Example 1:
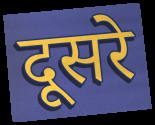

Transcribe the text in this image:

दूसरे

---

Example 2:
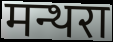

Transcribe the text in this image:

मन्थरा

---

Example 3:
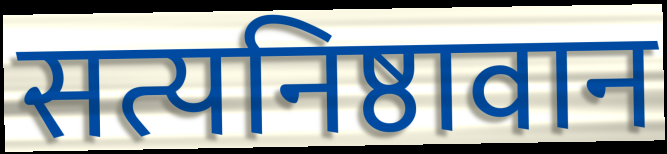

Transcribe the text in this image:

सत्यनिष्ठावान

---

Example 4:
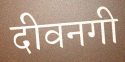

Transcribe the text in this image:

दीवनगी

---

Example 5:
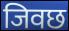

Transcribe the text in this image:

जिवछ